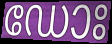
ഡോഃ